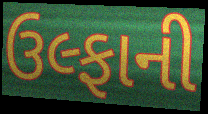
ઉલ્ફાની